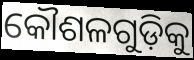
କୌଶଳଗୁଡ଼ିକୁ